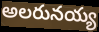
అలరునయ్య